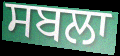
ਸਬਲਾ